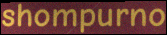
shompurno